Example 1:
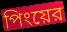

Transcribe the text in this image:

পিংয়ের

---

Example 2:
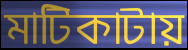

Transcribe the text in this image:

মাটিকাটায়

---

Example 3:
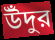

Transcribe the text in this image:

উঁদুর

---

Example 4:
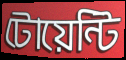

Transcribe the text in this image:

টোয়েন্টি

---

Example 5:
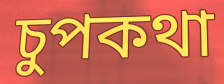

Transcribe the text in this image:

চুপকথা